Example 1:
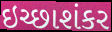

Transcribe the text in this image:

ઇચ્છાશંકર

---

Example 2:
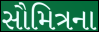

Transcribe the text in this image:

સૌમિત્રના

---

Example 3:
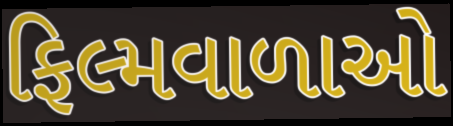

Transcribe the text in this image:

ફિલ્મવાળાઓ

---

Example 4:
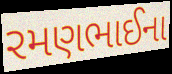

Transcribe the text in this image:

રમણભાઈના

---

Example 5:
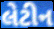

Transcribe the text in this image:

લેટીન